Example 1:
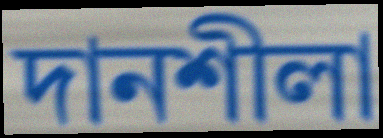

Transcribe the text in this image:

দানশীলা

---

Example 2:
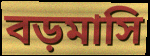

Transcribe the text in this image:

বড়মাসি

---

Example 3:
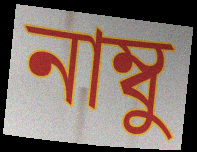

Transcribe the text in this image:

নাম্বু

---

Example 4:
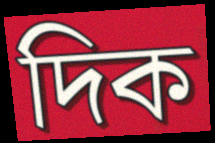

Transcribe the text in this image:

দিক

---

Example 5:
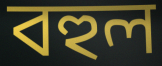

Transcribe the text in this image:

বহুল